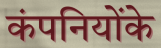
कंपनियोंके